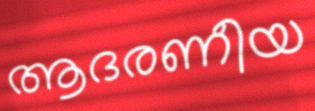
ആദരണീയ